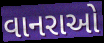
વાનરાઓ